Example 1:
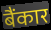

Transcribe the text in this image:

बैंकार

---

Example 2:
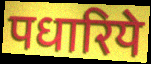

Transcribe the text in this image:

पधारिये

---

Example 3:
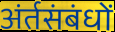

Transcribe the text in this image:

अंर्तसंबंधों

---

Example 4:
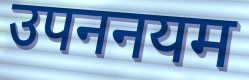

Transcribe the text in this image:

उपननयम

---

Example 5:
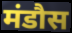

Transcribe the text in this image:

मंडौस